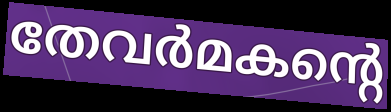
തേവർമകന്റെ